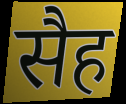
सैह